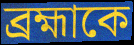
ব্রহ্মাকে